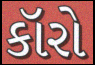
કૉરો